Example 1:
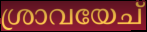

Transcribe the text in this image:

ശ്രാവയേച്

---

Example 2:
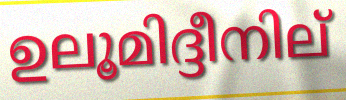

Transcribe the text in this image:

ഉലൂമിദ്ദീനില്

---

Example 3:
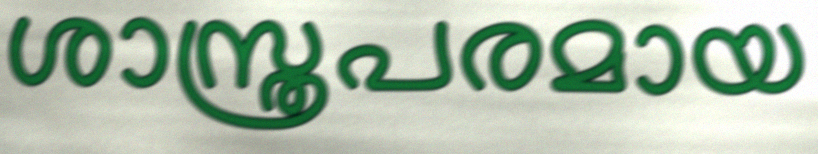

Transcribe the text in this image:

ശാസ്ത്രപരമായ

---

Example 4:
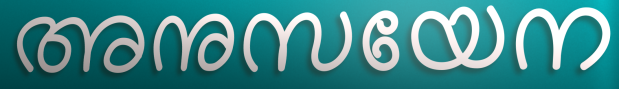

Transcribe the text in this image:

അനുസയേന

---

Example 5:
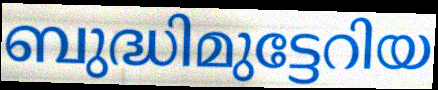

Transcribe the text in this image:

ബുദ്ധിമുട്ടേറിയ